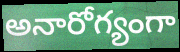
అనారోగ్యంగా